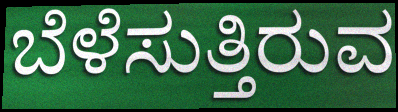
ಬೆಳೆಸುತ್ತಿರುವ